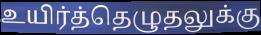
உயிர்த்தெழுதலுக்கு